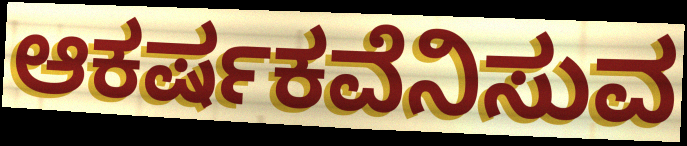
ಆಕರ್ಷಕವೆನಿಸುವ